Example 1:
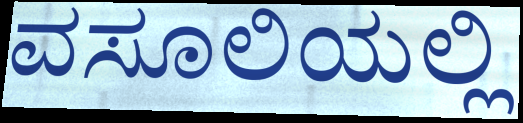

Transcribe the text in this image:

ವಸೂಲಿಯಲ್ಲಿ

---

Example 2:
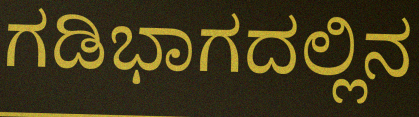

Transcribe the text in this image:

ಗಡಿಭಾಗದಲ್ಲಿನ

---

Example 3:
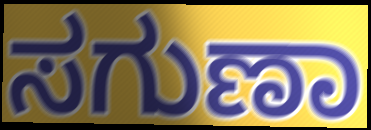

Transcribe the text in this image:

ಸಗುಣಾ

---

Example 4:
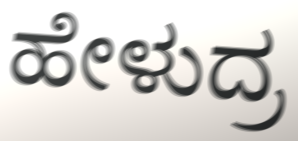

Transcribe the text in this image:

ಹೇಳುದ್ರ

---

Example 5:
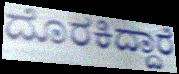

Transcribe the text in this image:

ದೊರಕಿದ್ದಾರೆ